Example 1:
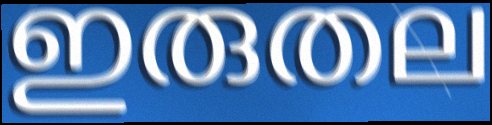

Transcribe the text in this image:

ഇരുതല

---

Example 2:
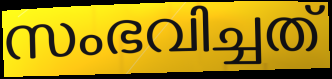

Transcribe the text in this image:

സംഭവിച്ചത്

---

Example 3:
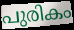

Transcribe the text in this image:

പുരികം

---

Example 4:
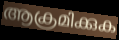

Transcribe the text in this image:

ആക്രമിക്കുക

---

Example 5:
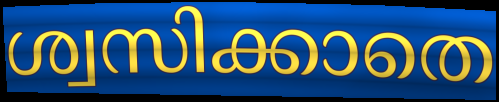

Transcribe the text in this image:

ശ്വസിക്കാതെ